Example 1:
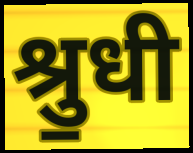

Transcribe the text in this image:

श्रु॒धी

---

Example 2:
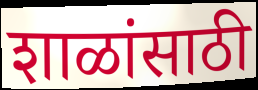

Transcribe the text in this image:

शाळांसाठी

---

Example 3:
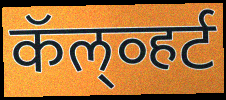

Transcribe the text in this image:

कॅल्व्हर्ट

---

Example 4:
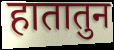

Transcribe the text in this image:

हातातुन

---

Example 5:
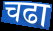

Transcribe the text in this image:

चढा